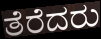
ತೆರೆದರು